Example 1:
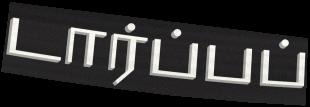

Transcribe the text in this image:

டார்ப்பப்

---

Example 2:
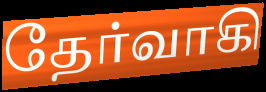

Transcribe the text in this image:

தேர்வாகி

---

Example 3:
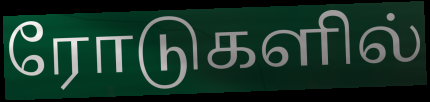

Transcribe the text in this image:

ரோடுகளில்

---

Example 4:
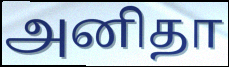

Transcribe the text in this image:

அனிதா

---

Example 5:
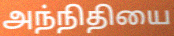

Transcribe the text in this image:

அந்நிதியை